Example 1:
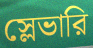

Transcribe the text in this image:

স্লেভারি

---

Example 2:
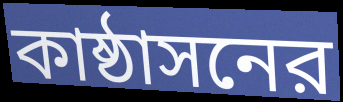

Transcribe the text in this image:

কাষ্ঠাসনের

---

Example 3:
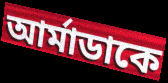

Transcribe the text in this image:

আর্মাডাকে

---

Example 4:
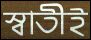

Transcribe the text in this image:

স্বাতীই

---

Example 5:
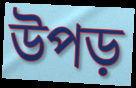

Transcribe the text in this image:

উপড়